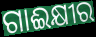
ଗାଈକ୍ଷୀର